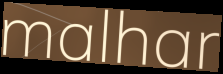
malhar